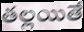
తల్లయితే